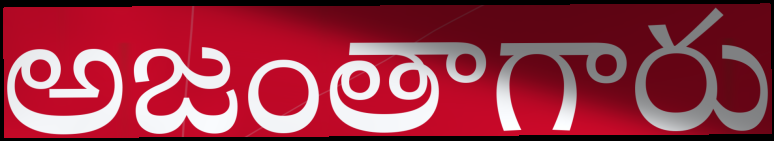
అజంతాగారు